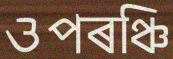
ওপৰঞ্চি